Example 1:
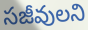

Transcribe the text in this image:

సజీవులని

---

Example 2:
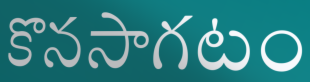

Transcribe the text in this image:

కొనసాగటం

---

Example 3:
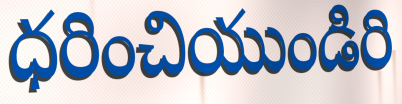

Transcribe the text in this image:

ధరించియుండిరి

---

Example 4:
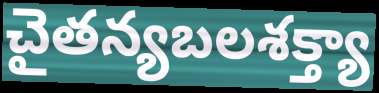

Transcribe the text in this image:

చైతన్యబలశక్త్యా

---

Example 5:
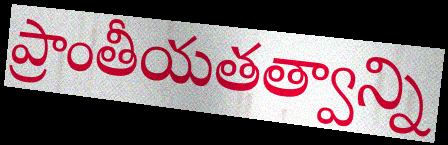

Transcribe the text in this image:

ప్రాంతీయతత్వాన్ని